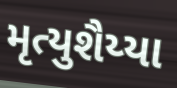
મૃત્યુશૈય્યા